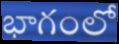
భాగంలో